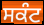
ਸਕੰਟ